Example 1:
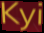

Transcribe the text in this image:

Kyi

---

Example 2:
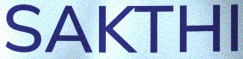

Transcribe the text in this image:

SAKTHI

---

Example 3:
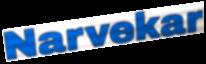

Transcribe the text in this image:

Narvekar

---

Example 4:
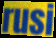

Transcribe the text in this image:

rusi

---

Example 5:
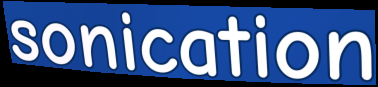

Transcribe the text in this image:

sonication